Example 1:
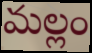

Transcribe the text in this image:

మల్లం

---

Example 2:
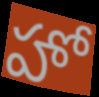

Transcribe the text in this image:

హో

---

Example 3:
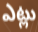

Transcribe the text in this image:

ఎట్లు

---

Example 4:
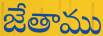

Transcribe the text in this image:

జేతాము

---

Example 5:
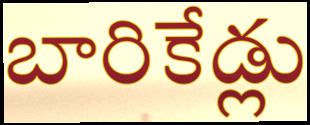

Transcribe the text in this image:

బారికేడ్లు